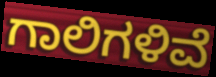
ಗಾಲಿಗಳಿವೆ